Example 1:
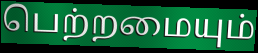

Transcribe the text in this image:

பெற்றமையும்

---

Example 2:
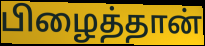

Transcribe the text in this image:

பிழைத்தான்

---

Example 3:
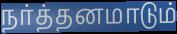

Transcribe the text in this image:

நர்த்தனமாடும்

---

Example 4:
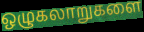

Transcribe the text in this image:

ஒழுகலாறுகளை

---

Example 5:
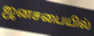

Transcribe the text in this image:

ஜனசபையில்